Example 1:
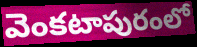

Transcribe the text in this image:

వెంకటాపురంలో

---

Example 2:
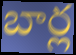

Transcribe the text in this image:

బార్ల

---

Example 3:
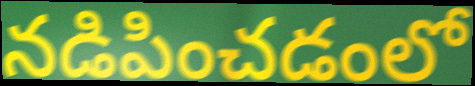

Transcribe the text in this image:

నడిపించడంలో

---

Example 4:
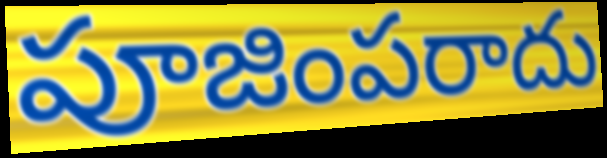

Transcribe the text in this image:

పూజింపరాదు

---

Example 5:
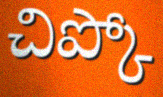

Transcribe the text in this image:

చిప్కో